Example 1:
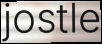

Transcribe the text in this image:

jostle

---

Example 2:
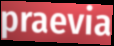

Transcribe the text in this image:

praevia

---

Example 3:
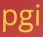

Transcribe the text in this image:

pgi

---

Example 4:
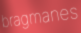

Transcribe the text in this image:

bragmanes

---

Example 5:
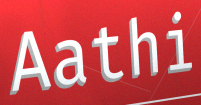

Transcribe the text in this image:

Aathi